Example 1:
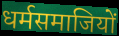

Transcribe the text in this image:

धर्मसमाजियों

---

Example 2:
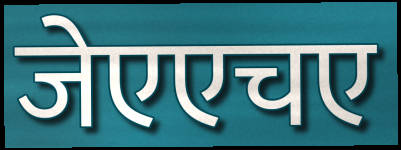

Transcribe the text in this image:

जेएएचए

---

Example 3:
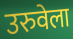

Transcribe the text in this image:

उरुवेला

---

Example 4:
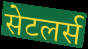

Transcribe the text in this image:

सेटलर्स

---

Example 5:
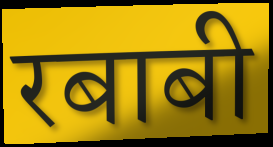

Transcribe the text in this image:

रबाबी